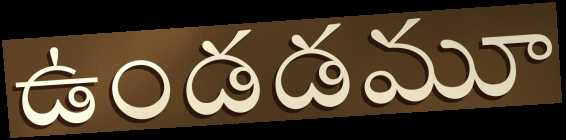
ఉండడమూ